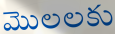
మొలలకు